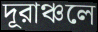
দূরাঞ্চলে